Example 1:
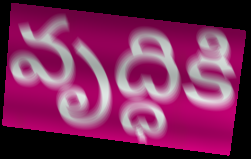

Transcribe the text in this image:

వృద్ధికి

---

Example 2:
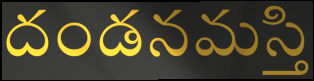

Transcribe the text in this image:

దండనమస్తి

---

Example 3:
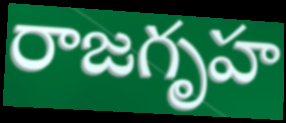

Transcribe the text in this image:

రాజగృహ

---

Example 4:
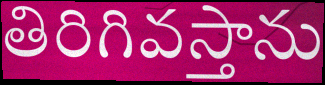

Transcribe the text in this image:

తిరిగివస్తాను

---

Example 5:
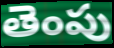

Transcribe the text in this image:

తెంపు